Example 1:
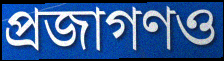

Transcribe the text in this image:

প্রজাগণও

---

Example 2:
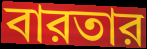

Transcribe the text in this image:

বারতার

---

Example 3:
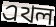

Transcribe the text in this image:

এথল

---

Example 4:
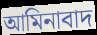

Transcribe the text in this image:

আমিনাবাদ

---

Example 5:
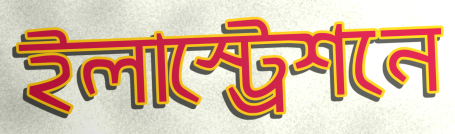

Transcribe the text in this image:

ইলাস্ট্রেশনে